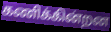
கணிக்கின்றன